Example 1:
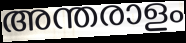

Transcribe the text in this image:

അന്തരാളം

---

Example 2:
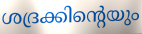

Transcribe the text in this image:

ശദ്രക്കിന്റെയും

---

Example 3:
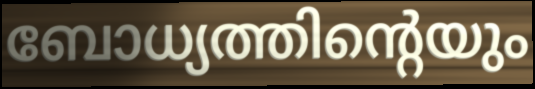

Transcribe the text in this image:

ബോധ്യത്തിന്റെയും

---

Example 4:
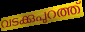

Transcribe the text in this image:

വടക്കുപുറത്ത്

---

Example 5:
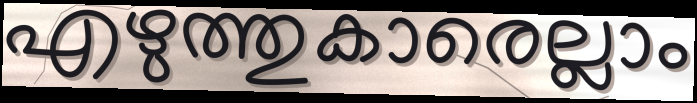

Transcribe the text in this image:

എഴുത്തുകാരെല്ലാം